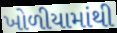
ખોળીયામાંથી